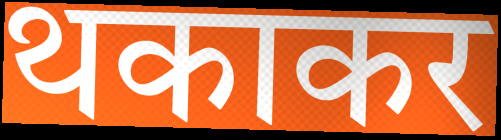
थकाकर